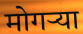
मोगऱ्या